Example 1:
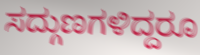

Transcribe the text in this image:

ಸದ್ಗುಣಗಳಿದ್ದರೂ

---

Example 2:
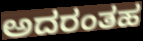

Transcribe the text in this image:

ಅದರಂತಹ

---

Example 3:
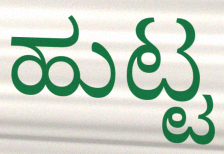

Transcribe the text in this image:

ಹುಟ್ಟ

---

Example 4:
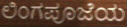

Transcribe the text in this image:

ಲಿಂಗಪೂಜೆಯ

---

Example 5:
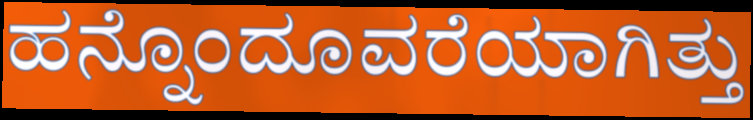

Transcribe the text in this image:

ಹನ್ನೊಂದೂವರೆಯಾಗಿತ್ತು